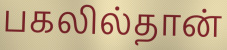
பகலில்தான்